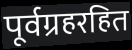
पूर्वग्रहरहित